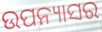
ଉପନ୍ୟାସର